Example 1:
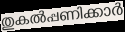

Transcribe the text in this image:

തുകൽപ്പണിക്കാർ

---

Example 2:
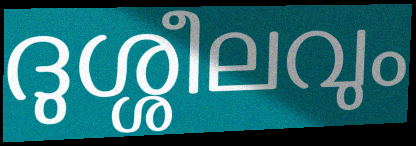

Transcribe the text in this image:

ദുശ്ശീലവും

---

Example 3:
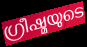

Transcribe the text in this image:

ഗ്രീഷ്മയുടെ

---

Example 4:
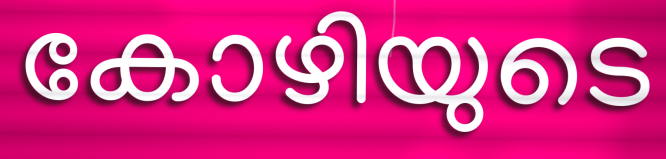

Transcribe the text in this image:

കോഴിയുടെ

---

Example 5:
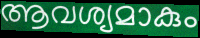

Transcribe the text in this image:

ആവശ്യമാകും